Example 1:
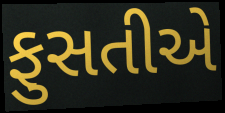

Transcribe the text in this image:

ફુસતીએ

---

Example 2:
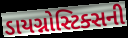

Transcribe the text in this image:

ડાયગ્નોસ્ટિક્સની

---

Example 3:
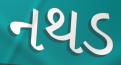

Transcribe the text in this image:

નથડ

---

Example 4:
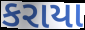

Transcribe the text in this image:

કરાયા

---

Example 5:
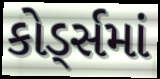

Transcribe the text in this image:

કોર્ડ્સમાં